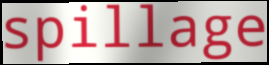
spillage